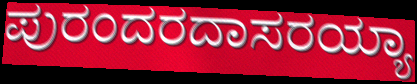
ಪುರಂದರದಾಸರಯ್ಯಾ